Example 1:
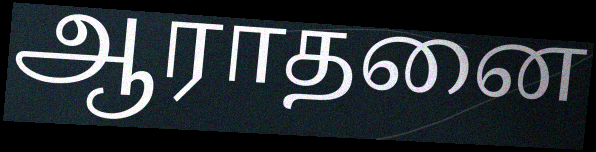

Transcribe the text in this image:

ஆராதனை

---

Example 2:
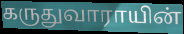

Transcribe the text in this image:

கருதுவாராயின்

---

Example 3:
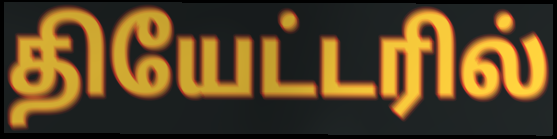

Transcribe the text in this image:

தியேட்டரில்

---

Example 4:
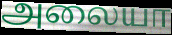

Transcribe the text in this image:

அலையா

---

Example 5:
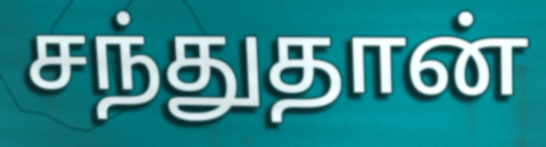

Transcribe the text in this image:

சந்துதான்